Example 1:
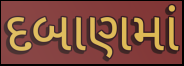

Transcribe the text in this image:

દબાણમાં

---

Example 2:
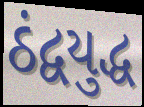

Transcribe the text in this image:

ઠંદ્વયુદ્ધ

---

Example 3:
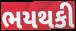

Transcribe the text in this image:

ભયથકી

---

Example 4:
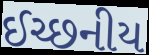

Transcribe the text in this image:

ઈચ્છનીય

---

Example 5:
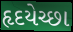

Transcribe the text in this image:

હૃદયેચ્છા